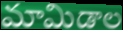
మామిడాల